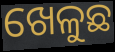
ଖେଳୁଛ